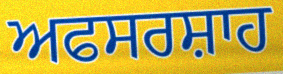
ਅਫਸਰਸ਼ਾਹ